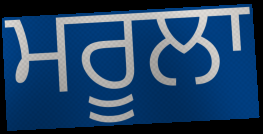
ਮਰੂਲਾ